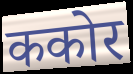
ककोर